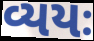
વ્યયઃ